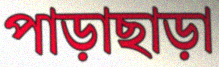
পাড়াছাড়া